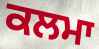
ਕਲਮਾ